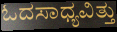
ಓದಸಾಧ್ಯವಿತ್ತು